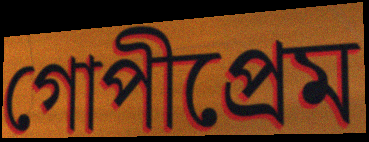
গোপীপ্রেম